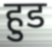
हुड